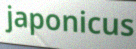
japonicus